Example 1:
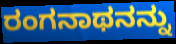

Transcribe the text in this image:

ರಂಗನಾಥನನ್ನು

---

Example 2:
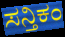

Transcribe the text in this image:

ಸನ್ತಿಕಂ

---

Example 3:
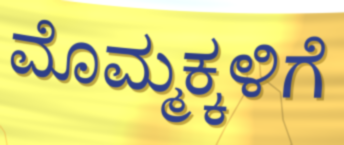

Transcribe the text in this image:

ಮೊಮ್ಮಕ್ಕಳಿಗೆ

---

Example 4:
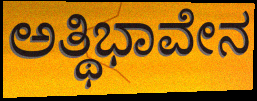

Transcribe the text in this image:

ಅತ್ಥಿಭಾವೇನ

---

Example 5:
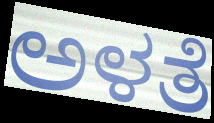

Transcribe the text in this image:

ಅಳತೆ